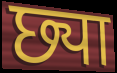
छ्या